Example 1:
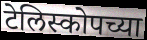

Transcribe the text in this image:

टेलिस्कोपच्या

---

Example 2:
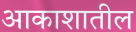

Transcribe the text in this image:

आकाशातील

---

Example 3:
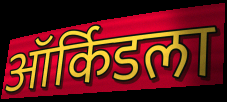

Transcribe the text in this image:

ऑर्किडला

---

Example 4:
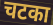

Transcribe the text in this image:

चटका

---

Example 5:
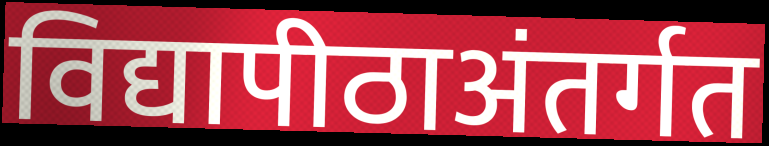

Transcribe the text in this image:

विद्यापीठाअंतर्गत